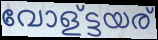
വോള്ട്ടയര്